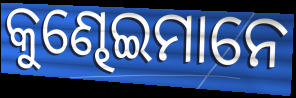
କୁଣ୍ଢେଇମାନେ